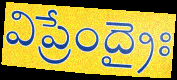
విప్రేంద్రైః